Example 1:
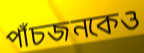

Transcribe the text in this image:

পাঁচজনকেও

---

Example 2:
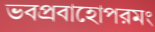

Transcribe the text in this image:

ভবপ্রবাহোপরমং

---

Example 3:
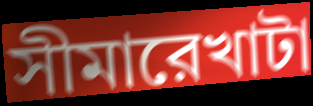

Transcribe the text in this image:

সীমারেখাটা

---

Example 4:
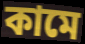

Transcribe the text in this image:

কামে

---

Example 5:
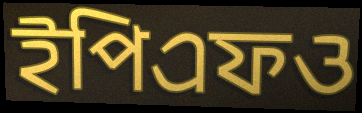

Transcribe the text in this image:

ইপিএফও